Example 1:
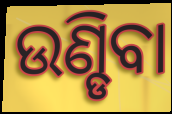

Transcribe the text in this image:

ଉଣ୍ଡିବା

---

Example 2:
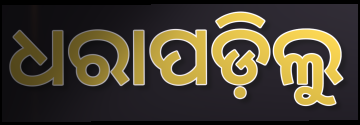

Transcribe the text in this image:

ଧରାପଡ଼ିଲୁ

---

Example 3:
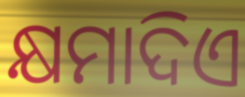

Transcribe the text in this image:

କ୍ଷମାଦିଏ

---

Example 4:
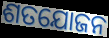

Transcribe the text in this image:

ଶତଯୋଜନ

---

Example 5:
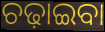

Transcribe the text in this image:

ଚଢ଼ାଇବା